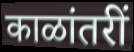
काळांतरीं